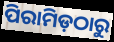
ପିରାମିଡ଼ଠାରୁ